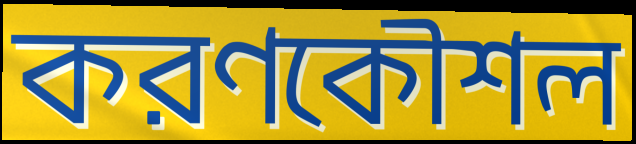
করণকৌশল